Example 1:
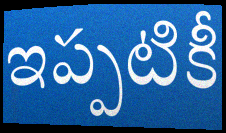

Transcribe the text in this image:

ఇప్పటికీ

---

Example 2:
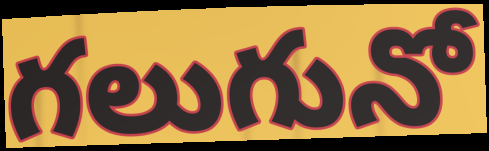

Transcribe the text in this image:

గలుగునో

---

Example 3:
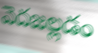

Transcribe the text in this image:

వెదజల్లడం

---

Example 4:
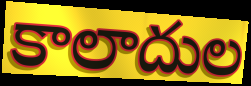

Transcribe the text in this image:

కాలాదుల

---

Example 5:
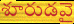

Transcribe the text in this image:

శూరుడవై